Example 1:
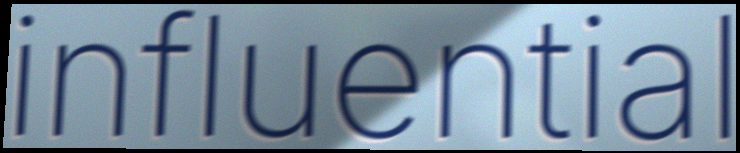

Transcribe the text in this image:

influential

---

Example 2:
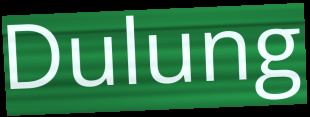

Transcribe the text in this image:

Dulung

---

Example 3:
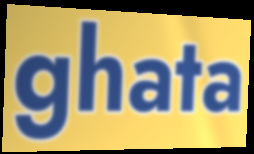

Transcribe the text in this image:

ghata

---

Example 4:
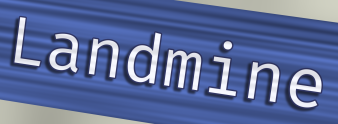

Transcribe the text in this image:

Landmine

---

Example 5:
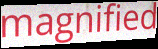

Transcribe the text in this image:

magnified